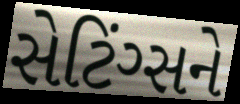
સેટિંગ્સને